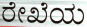
ರೇಖೆಯ